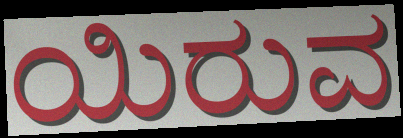
ಯಿರುವ